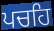
ਪਚਹਿ